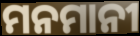
ମନମାନୀ